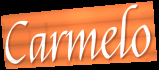
Carmelo